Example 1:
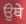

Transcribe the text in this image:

ਉਥੇ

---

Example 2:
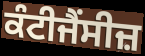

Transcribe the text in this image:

ਕੰਟੀਜੈਂਸੀਜ਼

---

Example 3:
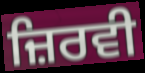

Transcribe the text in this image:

ਜ਼ਿਰਵੀ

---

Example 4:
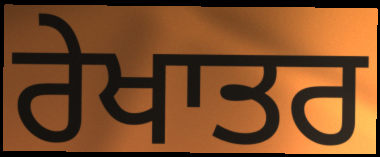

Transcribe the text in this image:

ਰੇਖਾਤਰ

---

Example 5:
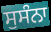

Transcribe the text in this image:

ਸੁਸੰਨਾ